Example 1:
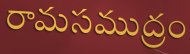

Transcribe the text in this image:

రామసముద్రం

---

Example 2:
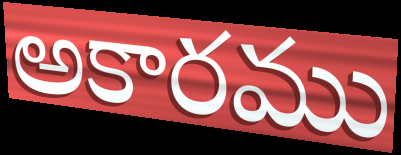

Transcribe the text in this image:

అకారము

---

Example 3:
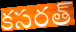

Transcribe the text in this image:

కసరత్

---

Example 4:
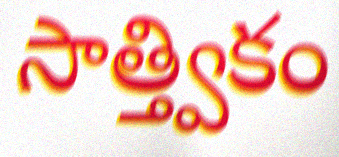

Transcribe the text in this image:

సాత్త్వికం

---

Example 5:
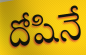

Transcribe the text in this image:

దోషినే